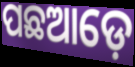
ପଛଆଡ଼େ